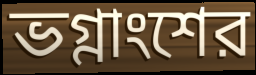
ভগ্নাংশের